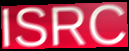
ISRC